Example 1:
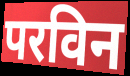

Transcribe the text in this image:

परविन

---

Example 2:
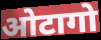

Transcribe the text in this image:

ओटागो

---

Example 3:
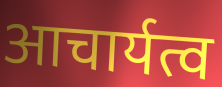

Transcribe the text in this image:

आचार्यत्व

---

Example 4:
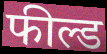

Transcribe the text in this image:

फील्‍ड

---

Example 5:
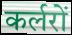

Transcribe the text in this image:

कर्लरों